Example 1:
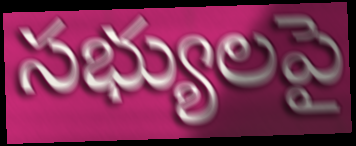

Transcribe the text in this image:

సభ్యులపై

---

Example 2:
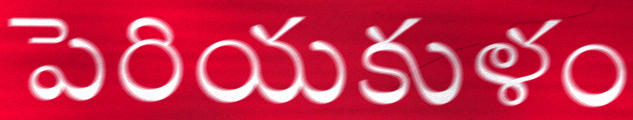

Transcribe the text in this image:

పెరియకుళం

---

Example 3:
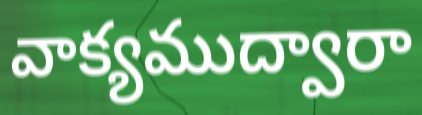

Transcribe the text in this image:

వాక్యముద్వారా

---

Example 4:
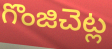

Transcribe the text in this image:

గొంజిచెట్ల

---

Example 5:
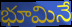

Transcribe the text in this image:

భూమినే